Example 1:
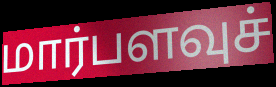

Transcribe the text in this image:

மார்பளவுச்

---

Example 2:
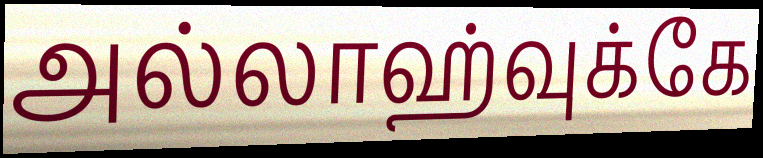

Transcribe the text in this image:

அல்லாஹ்வுக்கே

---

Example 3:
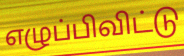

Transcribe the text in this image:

எழுப்பிவிட்டு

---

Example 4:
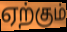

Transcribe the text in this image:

ஏற்கும்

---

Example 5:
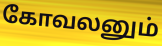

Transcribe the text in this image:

கோவலனும்